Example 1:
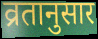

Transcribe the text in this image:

व्रतानुसार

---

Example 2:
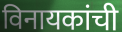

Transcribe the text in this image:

विनायकांची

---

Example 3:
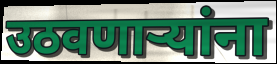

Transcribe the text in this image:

उठवणाऱ्यांना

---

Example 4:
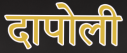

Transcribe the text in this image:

दापोली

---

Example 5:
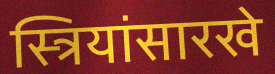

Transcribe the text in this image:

स्त्रियांसारखे